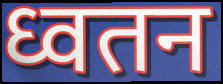
ध्वतन